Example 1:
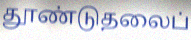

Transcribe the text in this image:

தூண்டுதலைப்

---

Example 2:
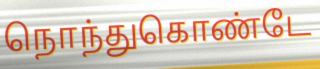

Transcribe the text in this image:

நொந்துகொண்டே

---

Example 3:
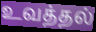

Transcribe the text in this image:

உவத்தல்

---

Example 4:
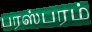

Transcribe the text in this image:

பரஸ்பரம்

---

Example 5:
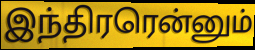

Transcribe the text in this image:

இந்திரரென்னும்